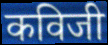
कविजी